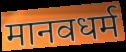
मानवधर्म